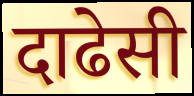
दाढेसी